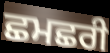
ਛਮਛਰੀ